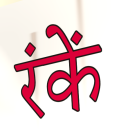
रंकें